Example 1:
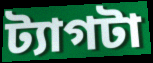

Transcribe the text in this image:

ট্যাগটা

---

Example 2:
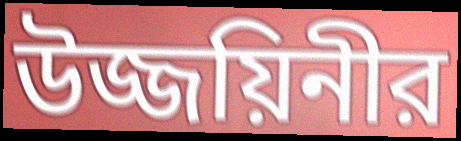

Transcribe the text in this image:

উজ্জয়িনীর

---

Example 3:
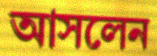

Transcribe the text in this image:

আসলেন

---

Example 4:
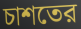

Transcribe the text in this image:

চাশতের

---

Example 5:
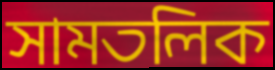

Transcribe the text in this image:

সামতলিক